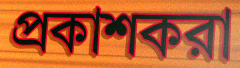
প্রকাশকরা